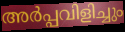
അർപ്പവിളിച്ചും